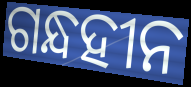
ଗନ୍ଧହୀନ